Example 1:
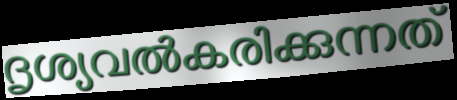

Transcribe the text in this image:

ദൃശ്യവൽകരിക്കുന്നത്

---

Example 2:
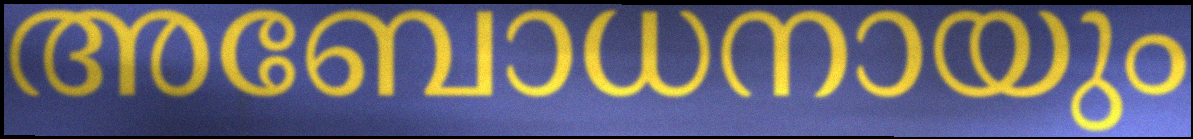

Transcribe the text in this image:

അബോധനായും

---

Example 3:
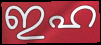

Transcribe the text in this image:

ഇഹ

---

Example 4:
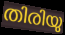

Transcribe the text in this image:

തിരിയു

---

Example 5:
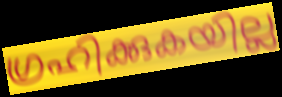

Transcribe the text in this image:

ഗ്രഹിക്കുകയില്ല